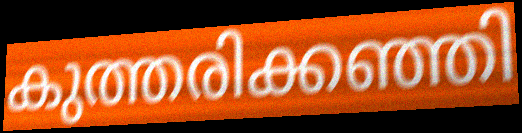
കുത്തരിക്കഞ്ഞി